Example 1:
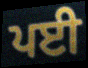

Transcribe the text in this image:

ਪਈ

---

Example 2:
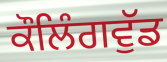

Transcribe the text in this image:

ਕੌਲਿੰਗਵੁੱਡ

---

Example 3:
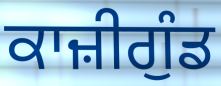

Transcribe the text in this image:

ਕਾਜ਼ੀਗੁੰਡ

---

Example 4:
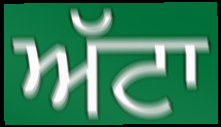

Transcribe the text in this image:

ਅੱਟਾ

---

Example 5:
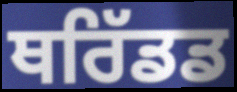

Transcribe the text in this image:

ਥਰਿੱਡਡ